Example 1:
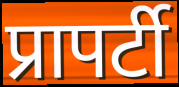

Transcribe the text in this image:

प्रापर्टी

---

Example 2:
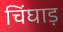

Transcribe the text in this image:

चिंघाड़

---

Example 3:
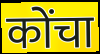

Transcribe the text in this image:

कोंचा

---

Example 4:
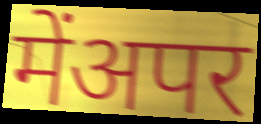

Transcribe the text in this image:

मेंअपर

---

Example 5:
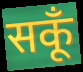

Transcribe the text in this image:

सकूँ